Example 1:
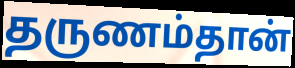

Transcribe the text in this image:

தருணம்தான்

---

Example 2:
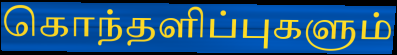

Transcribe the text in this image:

கொந்தளிப்புகளும்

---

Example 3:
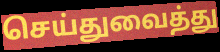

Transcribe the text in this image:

செய்துவைத்து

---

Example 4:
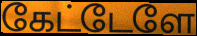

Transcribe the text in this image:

கேட்டேளே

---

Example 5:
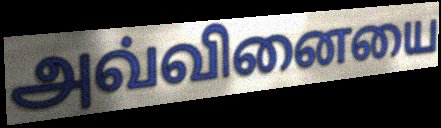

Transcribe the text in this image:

அவ்வினையை